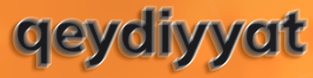
qeydiyyat